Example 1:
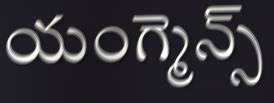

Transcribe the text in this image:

యంగ్మెన్స్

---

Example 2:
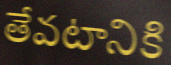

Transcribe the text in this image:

తేవటానికి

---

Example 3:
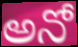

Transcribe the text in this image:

అనో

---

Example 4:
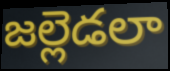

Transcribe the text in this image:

జల్లెడలా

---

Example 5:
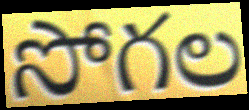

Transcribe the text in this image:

సోగల